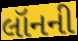
લૉનની